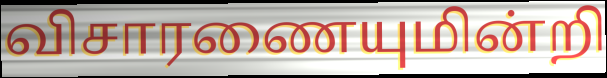
விசாரணையுமின்றி